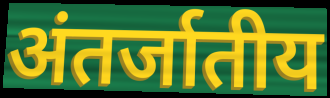
अंतर्जातीय